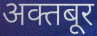
अक्तबूर